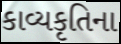
કાવ્યકૃતિના